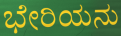
ಭೇರಿಯನು